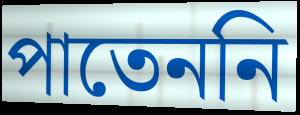
পাতেননি